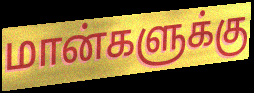
மான்களுக்கு